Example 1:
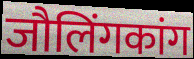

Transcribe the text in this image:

जौलिंगकांग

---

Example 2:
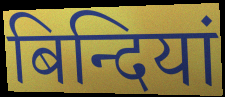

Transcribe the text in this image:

बिन्दियां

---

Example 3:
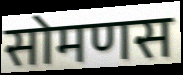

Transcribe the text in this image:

सोमणस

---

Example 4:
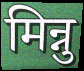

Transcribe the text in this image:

मिन्नु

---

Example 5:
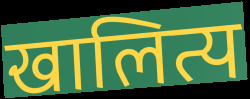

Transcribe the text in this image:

खालित्य